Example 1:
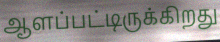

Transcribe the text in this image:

ஆளப்பட்டிருக்கிறது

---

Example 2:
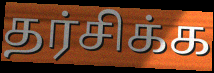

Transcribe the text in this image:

தர்சிக்க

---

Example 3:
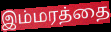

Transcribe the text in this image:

இம்மரத்தை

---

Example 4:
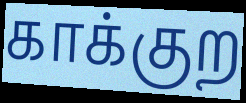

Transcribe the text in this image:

காக்குற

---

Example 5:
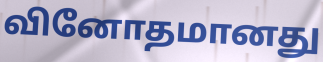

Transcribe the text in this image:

வினோதமானது